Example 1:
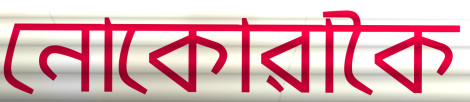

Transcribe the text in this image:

নোকোৱাকৈ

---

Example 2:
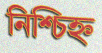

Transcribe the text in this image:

নিশ্চিহ্ন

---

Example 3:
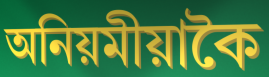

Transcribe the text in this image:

অনিয়মীয়াকৈ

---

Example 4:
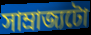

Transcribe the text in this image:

সাম্ৰাজ্যটো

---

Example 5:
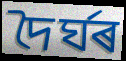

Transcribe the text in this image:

দৈৰ্ঘৰ